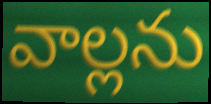
వాల్లను